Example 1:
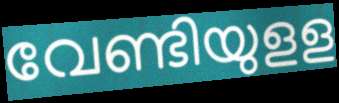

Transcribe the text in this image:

വേണ്ടിയുളള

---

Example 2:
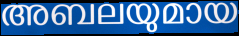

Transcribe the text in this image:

അബലയുമായ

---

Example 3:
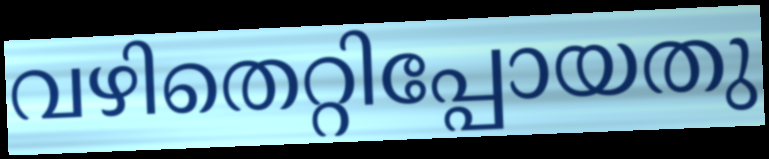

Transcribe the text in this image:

വഴിതെറ്റിപ്പോയതു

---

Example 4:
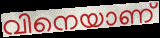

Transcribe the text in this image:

വിനെയാണ്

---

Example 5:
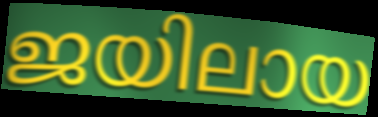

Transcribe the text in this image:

ജയിലായ